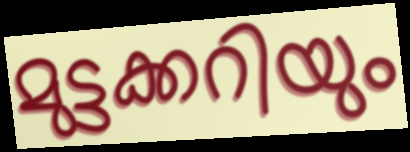
മുട്ടക്കറിയും